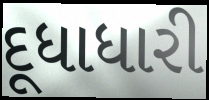
દૂધાધારી